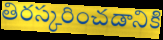
తిరస్కరించడానికి